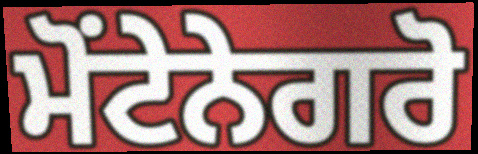
ਮੋਂਟੇਨੇਗਰੋ